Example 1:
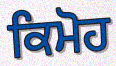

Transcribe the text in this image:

ਕਿਮੋਹ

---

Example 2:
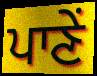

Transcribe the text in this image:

ਪਾਣੇਂ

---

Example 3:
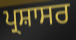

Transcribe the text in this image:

ਪ੍ਰਸ਼ਾਸਰ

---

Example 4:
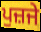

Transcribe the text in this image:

ਪੁਜ਼ਜੇ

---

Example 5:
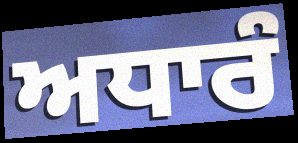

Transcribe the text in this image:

ਅਧਾਰੰ